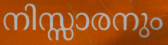
നിസ്സാരനും